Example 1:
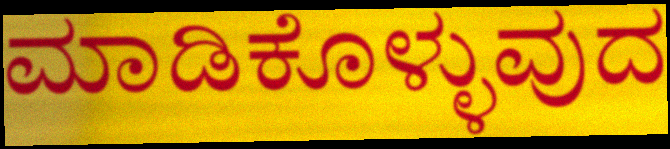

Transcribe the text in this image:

ಮಾಡಿಕೊಳ್ಳುವುದ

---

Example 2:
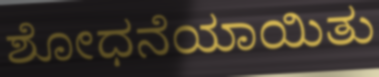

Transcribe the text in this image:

ಶೋಧನೆಯಾಯಿತು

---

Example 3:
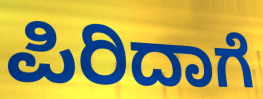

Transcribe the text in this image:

ಪಿರಿದಾಗೆ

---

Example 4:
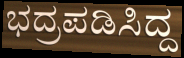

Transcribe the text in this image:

ಭದ್ರಪಡಿಸಿದ್ದ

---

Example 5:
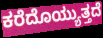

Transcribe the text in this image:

ಕರೆದೊಯ್ಯುತ್ತದೆ